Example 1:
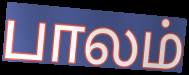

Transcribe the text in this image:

பாலம்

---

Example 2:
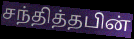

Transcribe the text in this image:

சந்தித்தபின்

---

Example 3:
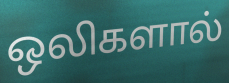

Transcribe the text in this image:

ஒலிகளால்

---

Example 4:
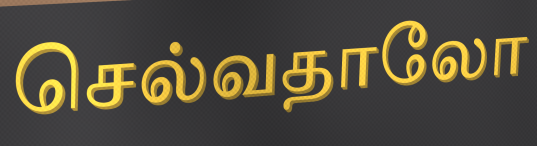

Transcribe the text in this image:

செல்வதாலோ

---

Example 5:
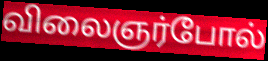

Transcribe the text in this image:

விலைஞர்போல்